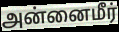
அன்னைமீர்